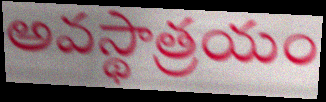
అవస్థాత్రయం